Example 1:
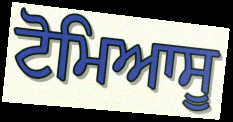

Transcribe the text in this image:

ਟੋਮਿਆਸੂ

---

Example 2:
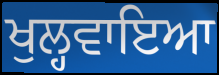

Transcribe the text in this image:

ਖੁਲ੍ਹਵਾਇਆ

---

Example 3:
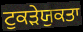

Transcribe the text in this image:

ਟੁਕੜੇਯੁਕਤਾ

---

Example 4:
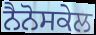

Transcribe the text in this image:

ਨੈਨੋਸਕੇਲ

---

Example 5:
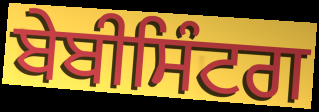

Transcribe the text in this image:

ਬੇਬੀਸਿੰਟਗ